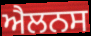
ਐਲਨਸ